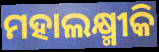
ମହାଲକ୍ଷ୍ମୀକି